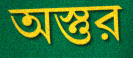
অস্তুর